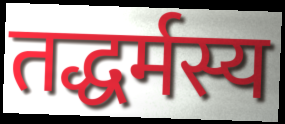
तद्धर्मस्य